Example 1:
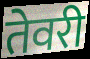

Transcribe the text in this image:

तेवरी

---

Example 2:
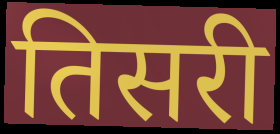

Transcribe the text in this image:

तिसरी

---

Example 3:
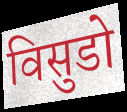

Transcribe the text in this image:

विसुडो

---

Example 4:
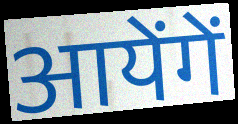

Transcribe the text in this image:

आयेंगें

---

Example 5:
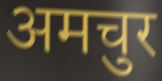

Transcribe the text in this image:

अमचुर